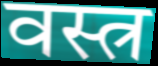
वस्‍त्र